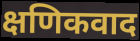
क्षणिकवाद